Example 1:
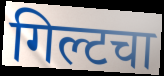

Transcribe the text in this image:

गिल्टचा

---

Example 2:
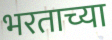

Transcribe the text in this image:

भरताच्या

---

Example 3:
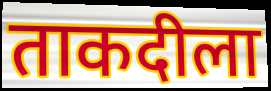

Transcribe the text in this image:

ताकदीला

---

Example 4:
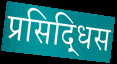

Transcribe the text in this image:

प्रसिद्धिस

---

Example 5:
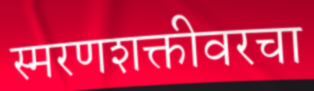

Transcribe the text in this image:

स्मरणशक्तीवरचा